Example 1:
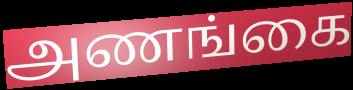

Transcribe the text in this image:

அணங்கை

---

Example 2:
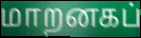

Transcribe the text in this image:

மாறனகப்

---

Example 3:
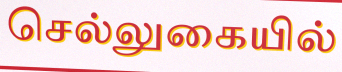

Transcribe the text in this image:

செல்லுகையில்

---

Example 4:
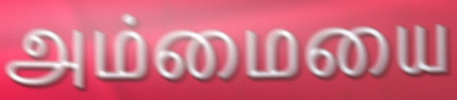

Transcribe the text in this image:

அம்மையை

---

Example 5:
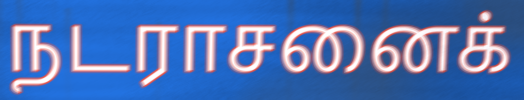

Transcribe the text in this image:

நடராசனைக்